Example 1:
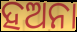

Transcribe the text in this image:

ହଅନା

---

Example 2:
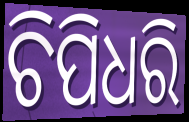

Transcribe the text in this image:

ଚିପିଧରି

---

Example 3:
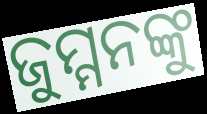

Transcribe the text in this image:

ଜୁମ୍ମନଙ୍କୁ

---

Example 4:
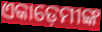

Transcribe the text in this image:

ଏକାଡ଼େମୀଙ୍କ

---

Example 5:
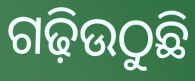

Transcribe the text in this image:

ଗଢ଼ିଉଠୁଛି